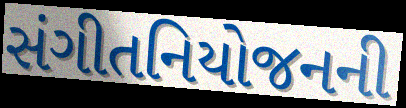
સંગીતનિયોજનની